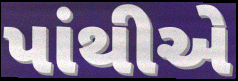
પાંથીએ